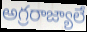
అగ్రరాజ్యాలే